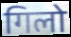
गिलो